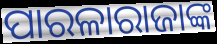
ପାରଳାରାଜାଙ୍କ